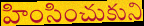
హింసించుకుని